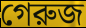
গেরুজ